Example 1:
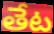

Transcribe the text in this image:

తేట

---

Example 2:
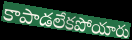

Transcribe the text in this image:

కాపాడలేకపోయారు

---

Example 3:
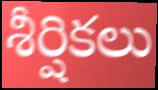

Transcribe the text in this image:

శీర్షికలు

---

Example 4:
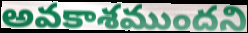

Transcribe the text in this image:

అవకాశముందని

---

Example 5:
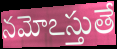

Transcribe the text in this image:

నమోఽస్తుతే